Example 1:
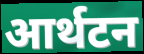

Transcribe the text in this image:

आर्थटन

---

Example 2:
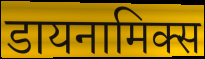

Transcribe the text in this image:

डायनामिक्स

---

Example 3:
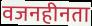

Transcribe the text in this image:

वजनहीनता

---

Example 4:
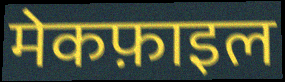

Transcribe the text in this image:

मेकफ़ाइल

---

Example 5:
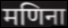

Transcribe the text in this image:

मणिना